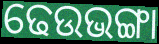
ଢେଉଭଙ୍ଗା